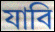
যাবি